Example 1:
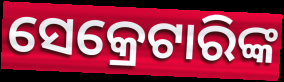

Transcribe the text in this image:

ସେକ୍ରେଟାରିଙ୍କ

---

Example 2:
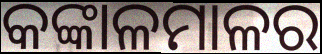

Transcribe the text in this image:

କଙ୍କାଳମାଳର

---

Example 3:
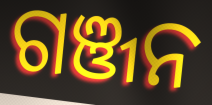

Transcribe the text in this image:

ଗଞ୍ଜନ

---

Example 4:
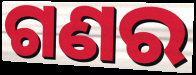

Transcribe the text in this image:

ଗଣର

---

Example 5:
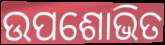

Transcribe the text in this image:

ଉପଶୋଭିତ